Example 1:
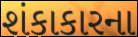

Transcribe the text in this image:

શંકાકારના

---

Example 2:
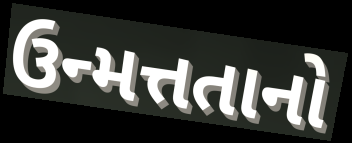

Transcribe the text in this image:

ઉન્મત્તતાનો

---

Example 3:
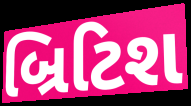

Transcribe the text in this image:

બ્રિટિશ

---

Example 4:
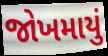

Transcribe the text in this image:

જોખમાયું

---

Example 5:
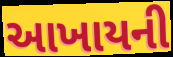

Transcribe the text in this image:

આખાયની